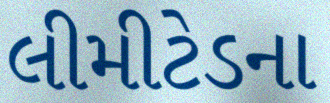
લીમીટેડના